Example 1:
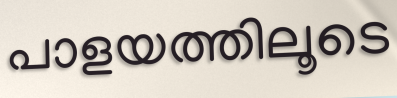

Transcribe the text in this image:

പാളയത്തിലൂടെ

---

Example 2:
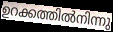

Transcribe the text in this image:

ഉറക്കത്തിൽനിന്നു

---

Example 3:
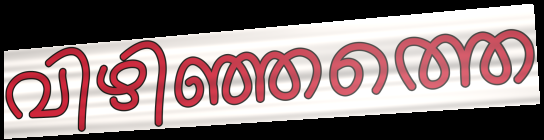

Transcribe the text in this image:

വിഴിഞ്ഞത്തെ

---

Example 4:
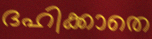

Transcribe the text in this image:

ദഹിക്കാതെ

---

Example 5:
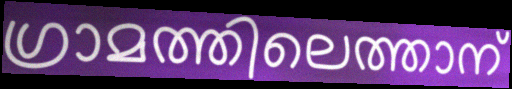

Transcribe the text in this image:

ഗ്രാമത്തിലെത്താന്